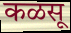
कळसू